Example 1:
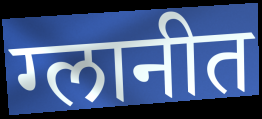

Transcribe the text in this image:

ग्लानीत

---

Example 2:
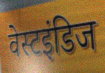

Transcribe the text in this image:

वेस्टइंडिज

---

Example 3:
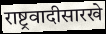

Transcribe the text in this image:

राष्ट्रवादीसारखे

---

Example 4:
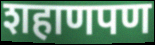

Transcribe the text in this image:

शहाणपण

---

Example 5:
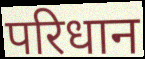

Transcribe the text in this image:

परिधान